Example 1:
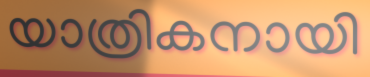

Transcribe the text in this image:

യാത്രികനായി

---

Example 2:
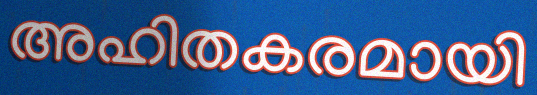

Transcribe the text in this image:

അഹിതകരമായി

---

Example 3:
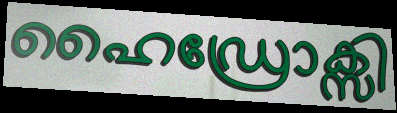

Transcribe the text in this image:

ഹൈഡ്രോക്സി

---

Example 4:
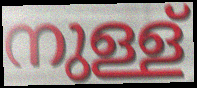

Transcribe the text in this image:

നുള്ള്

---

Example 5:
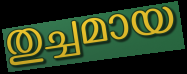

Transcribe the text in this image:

തുച്ചമായ